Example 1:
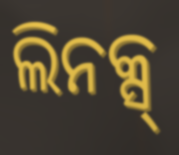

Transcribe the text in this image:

ଲିନକ୍ସ୍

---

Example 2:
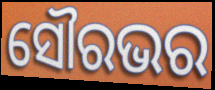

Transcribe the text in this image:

ସୌରଭର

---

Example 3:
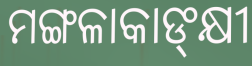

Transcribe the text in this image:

ମଙ୍ଗଳାକାଙ୍କ୍ଷୀ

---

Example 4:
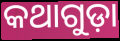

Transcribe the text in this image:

କଥାଗୁଡ଼ା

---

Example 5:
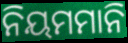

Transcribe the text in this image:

ନିୟମମାନି